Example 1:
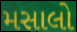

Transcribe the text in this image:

મસાલો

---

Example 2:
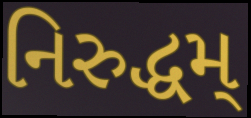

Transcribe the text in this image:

નિરુદ્ધમ્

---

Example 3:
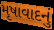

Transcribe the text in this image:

મૃષાવાદનું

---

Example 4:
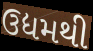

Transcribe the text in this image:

ઉદ્યમથી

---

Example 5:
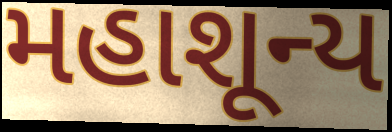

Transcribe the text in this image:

મહાશૂન્ય